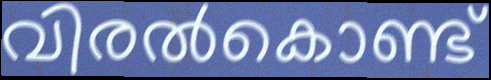
വിരൽകൊണ്ട്